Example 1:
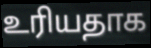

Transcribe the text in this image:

உரியதாக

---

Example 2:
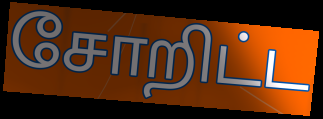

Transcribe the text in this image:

சோறிட்ட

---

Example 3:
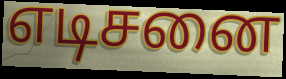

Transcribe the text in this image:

எடிசனை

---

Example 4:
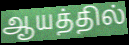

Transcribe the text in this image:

ஆயத்தில்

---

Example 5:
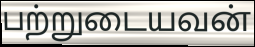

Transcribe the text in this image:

பற்றுடையவன்